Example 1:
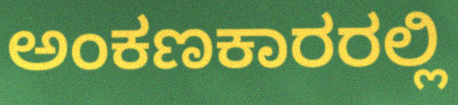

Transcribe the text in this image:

ಅಂಕಣಕಾರರಲ್ಲಿ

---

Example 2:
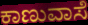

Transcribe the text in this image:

ಕಾಣುವಾಸೆ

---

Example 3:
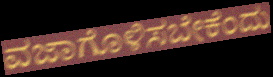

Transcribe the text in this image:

ವಜಾಗೊಳಿಸಬೇಕೆಂದು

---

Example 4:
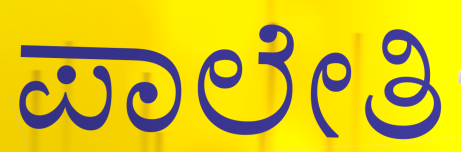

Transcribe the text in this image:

ಪಾಲೇತಿ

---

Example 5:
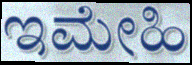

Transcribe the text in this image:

ಇಮೇಹಿ